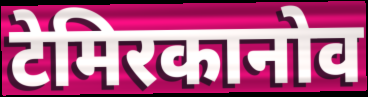
टेमिरकानोव